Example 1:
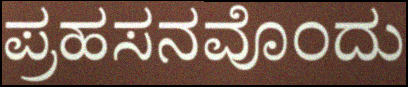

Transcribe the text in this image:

ಪ್ರಹಸನವೊಂದು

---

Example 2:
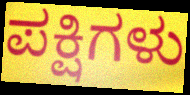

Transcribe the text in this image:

ಪಕ್ಷಿಗಳು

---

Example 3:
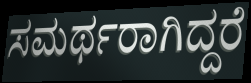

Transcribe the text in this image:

ಸಮರ್ಥರಾಗಿದ್ದರೆ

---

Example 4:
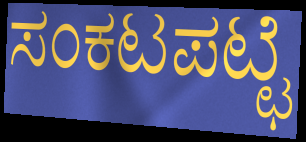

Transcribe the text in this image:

ಸಂಕಟಪಟ್ಟೆ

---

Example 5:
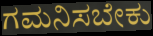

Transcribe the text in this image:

ಗಮನಿಸಬೇಕು